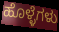
ಹೊಳ್ಳೆಗಳು